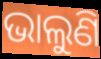
ଭାଲୁଣି